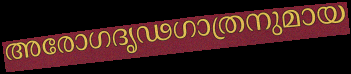
അരോഗദൃഢഗാത്രനുമായ